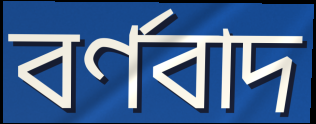
বর্ণবাদ